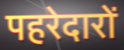
पहरेदारों